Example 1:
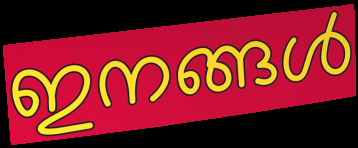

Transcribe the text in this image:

ഇനങ്ങൾ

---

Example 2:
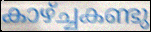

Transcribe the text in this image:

കാഴ്ച്ചകണ്ടു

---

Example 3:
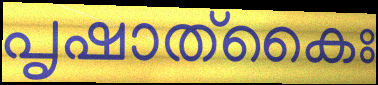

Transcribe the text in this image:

പൃഷാത്കൈഃ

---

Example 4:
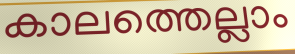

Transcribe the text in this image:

കാലത്തെല്ലാം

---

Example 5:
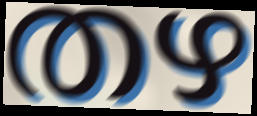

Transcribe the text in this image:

തഴ